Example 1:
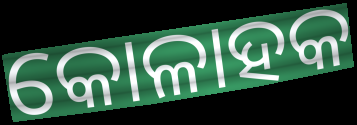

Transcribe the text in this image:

କୋଳାହକ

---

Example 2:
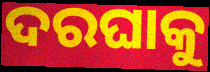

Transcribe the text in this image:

ଦରଘାକୁ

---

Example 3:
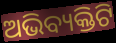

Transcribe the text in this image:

ଅଭିବ୍ୟକ୍ତିଟି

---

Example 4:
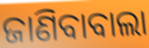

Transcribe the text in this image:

ଜାଣିବାବାଲା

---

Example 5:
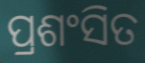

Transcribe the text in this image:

ପ୍ରଶଂସିତ